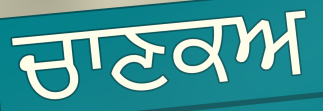
ਚਾਣਕਅ